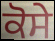
ਕੋਸੇ